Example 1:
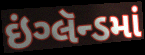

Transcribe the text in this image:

ઇંગ્લૅન્ડમાં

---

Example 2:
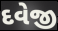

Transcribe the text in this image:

દવેજી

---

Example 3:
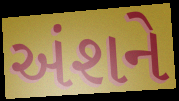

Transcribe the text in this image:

અંશને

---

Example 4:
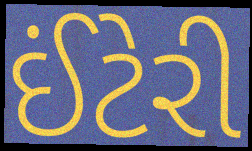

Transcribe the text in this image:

ઈંટેરી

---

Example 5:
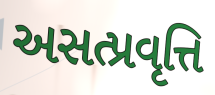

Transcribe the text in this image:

અસત્પ્રવૃત્તિ